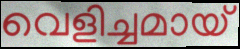
വെളിച്ചമായ്